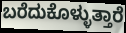
ಬರೆದುಕೊಳ್ಳುತ್ತಾರೆ